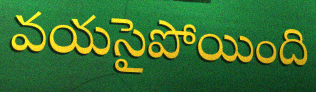
వయసైపోయింది